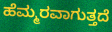
ಹೆಮ್ಮರವಾಗುತ್ತದೆ